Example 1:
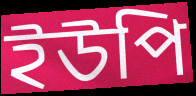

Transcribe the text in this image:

ইউপি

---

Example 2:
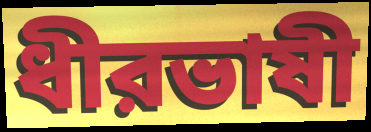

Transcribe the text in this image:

ধীরভাষী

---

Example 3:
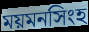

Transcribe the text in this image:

ময়মনসিংহ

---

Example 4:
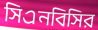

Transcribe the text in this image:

সিএনবিসির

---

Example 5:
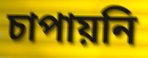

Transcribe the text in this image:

চাপায়নি